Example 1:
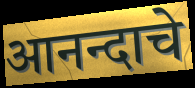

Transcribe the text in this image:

आनन्दाचे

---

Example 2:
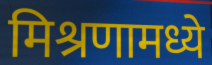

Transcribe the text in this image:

मिश्रणामध्ये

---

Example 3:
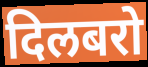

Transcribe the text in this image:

दिलबरो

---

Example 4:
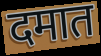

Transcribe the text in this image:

दमात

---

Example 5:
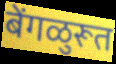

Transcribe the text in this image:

बेंगळुरूत